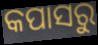
କପାସରୁ